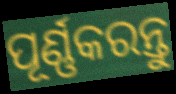
ପୂର୍ଣ୍ଣକରନ୍ତୁ